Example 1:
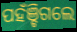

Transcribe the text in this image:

ପହଁଞ୍ଚିଗଲେ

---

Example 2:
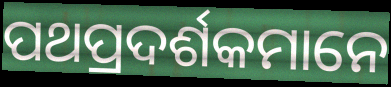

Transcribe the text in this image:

ପଥପ୍ରଦର୍ଶକମାନେ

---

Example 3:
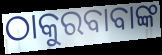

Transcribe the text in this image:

ଠାକୁରବାବାଙ୍କ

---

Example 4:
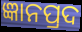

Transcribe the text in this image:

ଜ୍ଞାନପ୍ରଦ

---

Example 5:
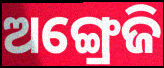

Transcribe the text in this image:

ଅଙ୍ଗ୍ରେଜି